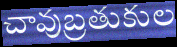
చావుబ్రతుకుల